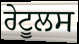
ਰੇਟੂਲਸ